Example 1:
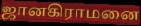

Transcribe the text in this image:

ஜானகிராமனை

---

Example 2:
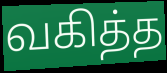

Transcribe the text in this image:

வகித்த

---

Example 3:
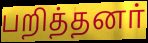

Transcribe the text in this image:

பறித்தனர்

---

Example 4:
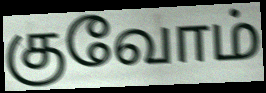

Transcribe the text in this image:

குவோம்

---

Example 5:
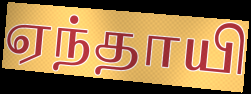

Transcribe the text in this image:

ஏந்தாயி